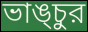
ভাঙ্চুর